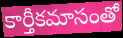
కార్తీకమాసంతో